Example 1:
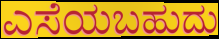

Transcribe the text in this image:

ಎಸೆಯಬಹುದು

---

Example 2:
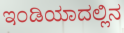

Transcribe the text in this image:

ಇಂಡಿಯಾದಲ್ಲಿನ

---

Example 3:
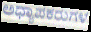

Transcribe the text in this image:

ಅಧ್ಯಾಪಕರುಗಳ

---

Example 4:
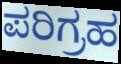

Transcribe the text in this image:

ಪರಿಗ್ರಹ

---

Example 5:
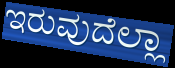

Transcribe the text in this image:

ಇರುವುದೆಲ್ಲಾ